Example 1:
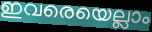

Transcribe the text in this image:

ഇവരെയെല്ലാം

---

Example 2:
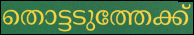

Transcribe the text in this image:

തൊട്ടടുത്തേക്ക്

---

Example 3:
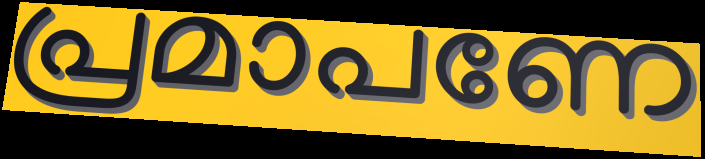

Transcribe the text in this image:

പ്രമാപണേ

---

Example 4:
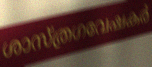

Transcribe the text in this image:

ശാസ്ത്രഗവേഷകർ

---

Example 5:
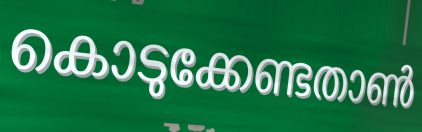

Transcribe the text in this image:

കൊടുക്കേണ്ടതാൺ